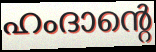
ഹംദാന്റെ